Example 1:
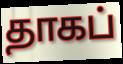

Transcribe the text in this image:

தாகப்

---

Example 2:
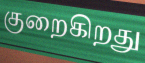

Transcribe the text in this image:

குறைகிறது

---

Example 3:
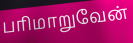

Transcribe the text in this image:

பரிமாறுவேன்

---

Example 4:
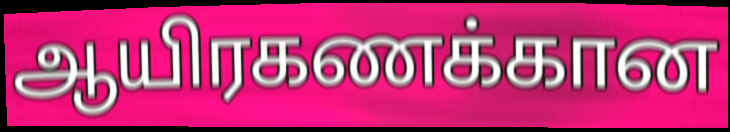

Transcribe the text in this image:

ஆயிரகணக்கான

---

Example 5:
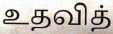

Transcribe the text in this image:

உதவித்